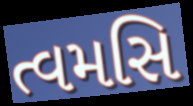
ત્વમસિ